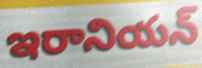
ఇరానియన్